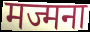
मज्मना